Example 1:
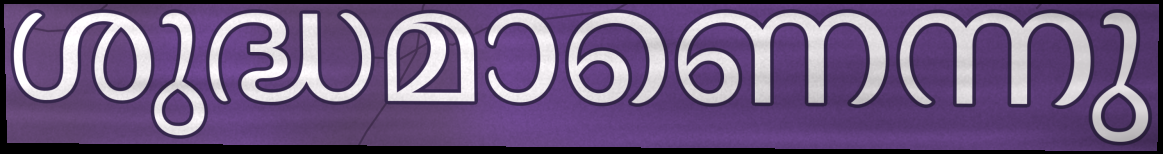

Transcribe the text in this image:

ശുദ്ധമാണെന്നു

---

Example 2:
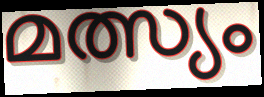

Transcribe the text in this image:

മത്സ്യം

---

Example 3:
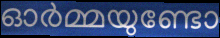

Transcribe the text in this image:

ഓർമ്മയുണ്ടോ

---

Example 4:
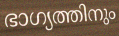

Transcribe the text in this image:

ഭാഗ്യത്തിനും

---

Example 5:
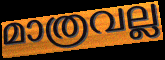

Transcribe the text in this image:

മാത്രവല്ല